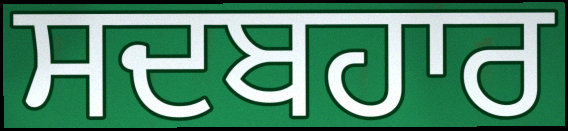
ਸਦਬਹਾਰ